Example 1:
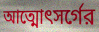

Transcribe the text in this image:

আত্মোৎসর্গের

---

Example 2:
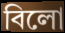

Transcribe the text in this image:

বিলো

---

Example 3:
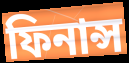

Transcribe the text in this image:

ফিনান্স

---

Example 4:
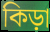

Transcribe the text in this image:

কিড়া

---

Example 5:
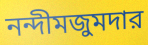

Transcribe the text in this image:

নন্দীমজুমদার